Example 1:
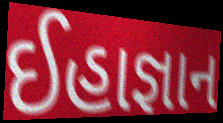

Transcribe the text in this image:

ઈહાજ્ઞાન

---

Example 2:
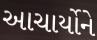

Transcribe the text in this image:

આચાર્યોને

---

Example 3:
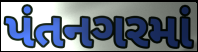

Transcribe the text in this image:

પંતનગરમાં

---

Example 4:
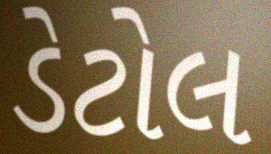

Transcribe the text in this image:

ડેટોલ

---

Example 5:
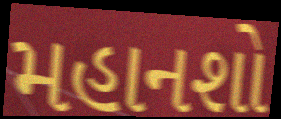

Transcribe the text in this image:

મહાનશો